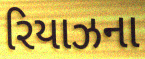
રિયાઝના